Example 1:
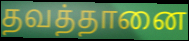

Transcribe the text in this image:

தவத்தானை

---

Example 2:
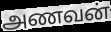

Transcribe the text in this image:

அணவன்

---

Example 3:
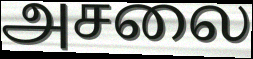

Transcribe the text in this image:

அசலை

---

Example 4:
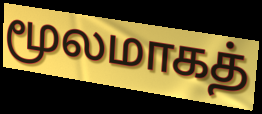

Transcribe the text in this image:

மூலமாகத்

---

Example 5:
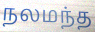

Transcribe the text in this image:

நலமந்த